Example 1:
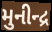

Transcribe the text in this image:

મુનીન્દ્ર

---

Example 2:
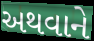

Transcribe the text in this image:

અથવાને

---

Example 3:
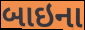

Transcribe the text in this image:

બાઇના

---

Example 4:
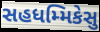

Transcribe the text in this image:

સહધમ્મિકેસુ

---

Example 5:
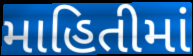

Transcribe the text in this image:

માહિતીમાં